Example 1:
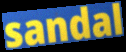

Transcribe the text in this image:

sandal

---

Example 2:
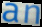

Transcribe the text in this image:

an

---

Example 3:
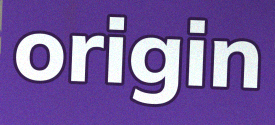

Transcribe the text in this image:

origin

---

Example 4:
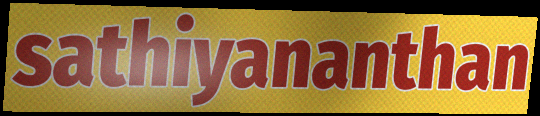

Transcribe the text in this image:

sathiyananthan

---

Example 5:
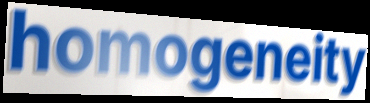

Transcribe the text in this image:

homogeneity